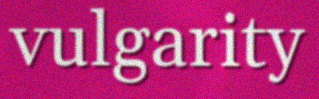
vulgarity